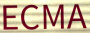
ECMA